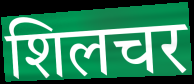
शिलचर